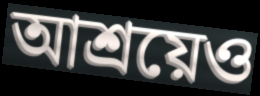
আশ্রয়েও